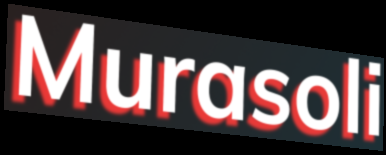
Murasoli